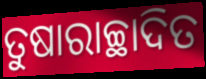
ତୁଷାରାଚ୍ଛାଦିତ